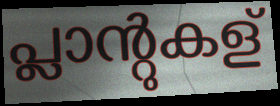
പ്ലാന്റുകള്